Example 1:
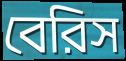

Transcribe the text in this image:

বেরিস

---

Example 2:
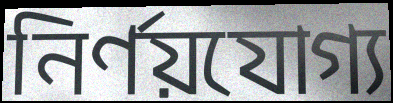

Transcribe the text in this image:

নির্ণয়যোগ্য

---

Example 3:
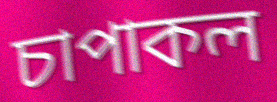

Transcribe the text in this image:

চাপাকল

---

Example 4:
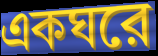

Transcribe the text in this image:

একঘরে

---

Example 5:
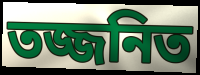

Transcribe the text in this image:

তজ্জনিত